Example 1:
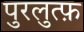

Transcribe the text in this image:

पुरलुत्फ़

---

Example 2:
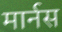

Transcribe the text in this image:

मार्नस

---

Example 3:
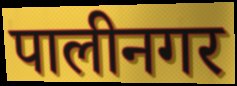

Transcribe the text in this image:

पालीनगर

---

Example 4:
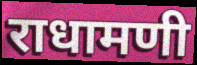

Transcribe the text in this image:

राधामणी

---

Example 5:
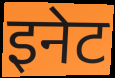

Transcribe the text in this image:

इनेट